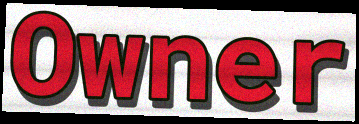
Owner